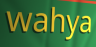
wahya